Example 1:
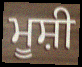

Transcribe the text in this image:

ਮੂਸ਼ੀ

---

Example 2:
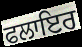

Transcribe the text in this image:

ਫਲਾਇਰ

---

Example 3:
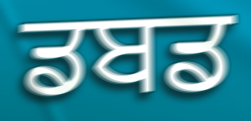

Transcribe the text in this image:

ਡਬਡ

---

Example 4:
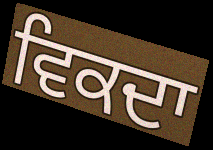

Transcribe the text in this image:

ਵਿਕਦਾ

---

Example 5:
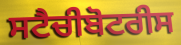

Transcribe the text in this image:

ਸਟੈਚੀਬੋਟਰੀਸ